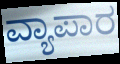
ವ್ಯಾಪಾರ